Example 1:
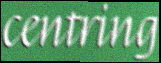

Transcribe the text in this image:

centring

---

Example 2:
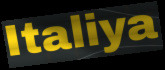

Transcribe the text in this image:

Italiya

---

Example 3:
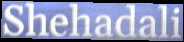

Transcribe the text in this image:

Shehadali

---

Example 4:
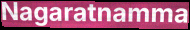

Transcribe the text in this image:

Nagaratnamma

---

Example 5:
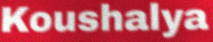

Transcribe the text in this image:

Koushalya